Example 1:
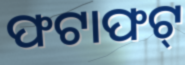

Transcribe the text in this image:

ଫଟାଫଟ୍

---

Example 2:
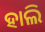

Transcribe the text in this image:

ହାଲି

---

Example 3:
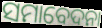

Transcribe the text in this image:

ସମାବେଦନା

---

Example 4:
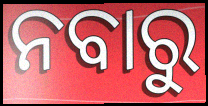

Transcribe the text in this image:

ନବାରୁ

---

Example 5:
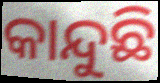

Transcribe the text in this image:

କାନ୍ଦୁଛି